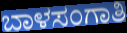
ಬಾಳಸಂಗಾತಿ